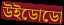
উইডোডো